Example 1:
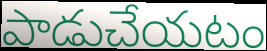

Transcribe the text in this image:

పాడుచేయటం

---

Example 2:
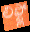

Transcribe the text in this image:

లిఫ్ట్లో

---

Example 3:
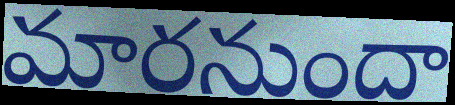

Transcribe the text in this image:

మారనుందా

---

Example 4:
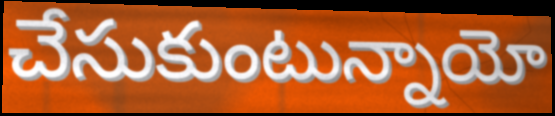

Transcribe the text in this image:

చేసుకుంటున్నాయో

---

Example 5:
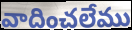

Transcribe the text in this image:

వాదించలేము